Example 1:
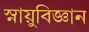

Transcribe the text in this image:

স্নায়ুবিজ্ঞান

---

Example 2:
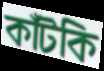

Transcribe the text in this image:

কাঁটকি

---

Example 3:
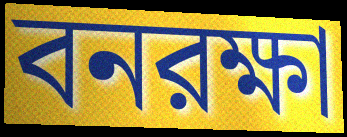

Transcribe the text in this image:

বনরক্ষা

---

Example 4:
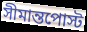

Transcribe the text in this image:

সীমান্তপোস্ট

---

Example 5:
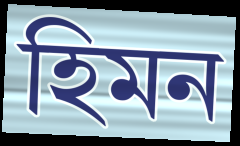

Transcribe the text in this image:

হিমন